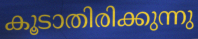
കൂടാതിരിക്കുന്നു